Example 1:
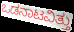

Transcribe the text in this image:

ಒಡನಾಟವಿತ್ತು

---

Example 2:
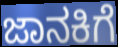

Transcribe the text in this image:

ಜಾನಕಿಗೆ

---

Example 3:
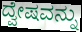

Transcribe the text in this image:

ದ್ವೇಷವನ್ನು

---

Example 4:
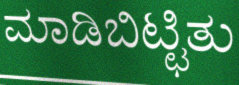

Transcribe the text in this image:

ಮಾಡಿಬಿಟ್ಟಿತು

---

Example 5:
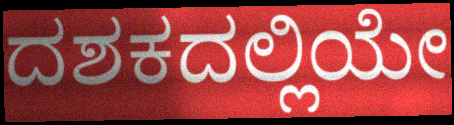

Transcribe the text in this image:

ದಶಕದಲ್ಲಿಯೇ